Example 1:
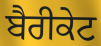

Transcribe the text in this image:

ਬੈਰੀਕੇਟ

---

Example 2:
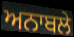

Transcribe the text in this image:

ਅਨਾਬਲੇ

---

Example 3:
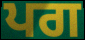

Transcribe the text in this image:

ਪਗ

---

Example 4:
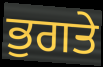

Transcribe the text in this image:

ਭੁਗਤੇ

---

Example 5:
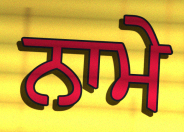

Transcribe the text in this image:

ਨਾਮੇ